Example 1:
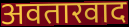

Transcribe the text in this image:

अवतारवाद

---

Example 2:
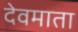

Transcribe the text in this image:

देवमाता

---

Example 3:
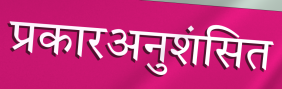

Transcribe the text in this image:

प्रकारअनुशंसित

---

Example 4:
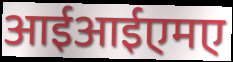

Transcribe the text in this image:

आईआईएमए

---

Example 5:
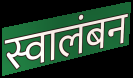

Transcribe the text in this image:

स्वालंबन